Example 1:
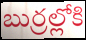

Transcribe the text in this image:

బుర్రల్లోకి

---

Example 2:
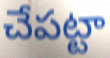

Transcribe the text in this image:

చేపట్టా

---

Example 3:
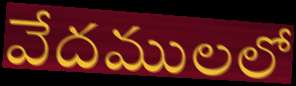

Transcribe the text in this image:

వేదములలో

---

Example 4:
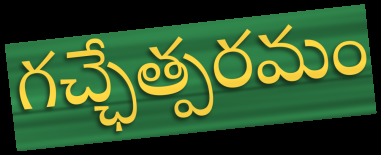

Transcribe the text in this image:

గచ్ఛేత్పరమం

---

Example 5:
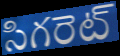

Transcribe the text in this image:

సిగరెట్